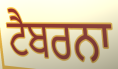
ਟੈਬਰਨਾ